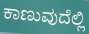
ಕಾಣುವುದೆಲ್ಲಿ